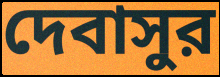
দেবাসুর